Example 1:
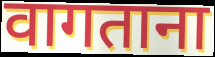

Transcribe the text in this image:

वागताना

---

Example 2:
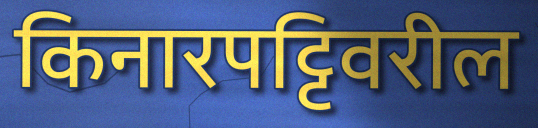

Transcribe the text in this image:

किनारपट्टिवरील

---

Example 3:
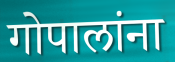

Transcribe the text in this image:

गोपालांना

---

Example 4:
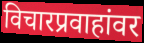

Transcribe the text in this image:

विचारप्रवाहांवर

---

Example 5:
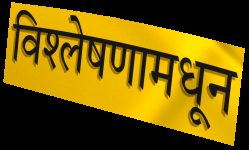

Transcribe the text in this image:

विश्लेषणामधून